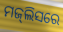
ମଜ୍‍ଲିସରେ